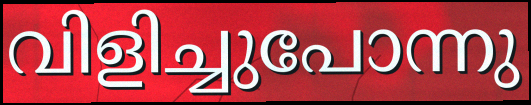
വിളിച്ചുപോന്നു